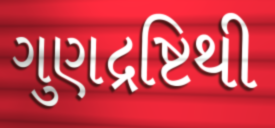
ગુણદ્રષ્ટિથી